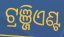
ଟ୍ରଞ୍ଜିଏଣ୍ଟ